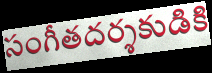
సంగీతదర్శకుడికి